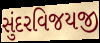
સુંદરવિજયજી